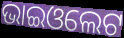
ଭାଇଓଲେଟ